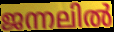
ജന്നലിൽ